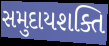
સમુદાયશક્તિ